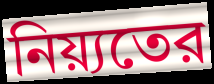
নিয়্যতের